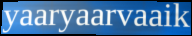
yaaryaarvaaik